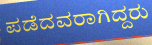
ಪಡೆದವರಾಗಿದ್ದರು